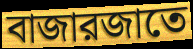
বাজারজাতে